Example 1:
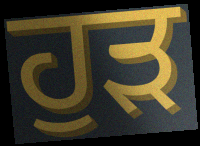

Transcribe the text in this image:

ਹੁੜ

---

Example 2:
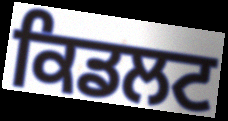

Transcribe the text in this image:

ਕਿਡਲਟ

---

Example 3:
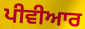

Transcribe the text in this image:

ਪੀਵੀਆਰ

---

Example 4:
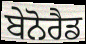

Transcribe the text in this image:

ਬੇਨੋਰੈਡ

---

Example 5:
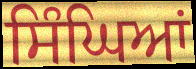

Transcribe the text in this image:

ਸਿੰਘਿਆਂ